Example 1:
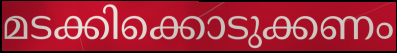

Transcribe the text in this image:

മടക്കിക്കൊടുക്കണം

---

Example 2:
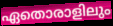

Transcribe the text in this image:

ഏതൊരാളിലും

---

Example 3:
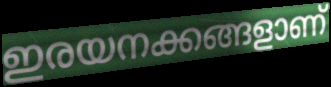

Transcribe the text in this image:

ഇരയനക്കങ്ങളാണ്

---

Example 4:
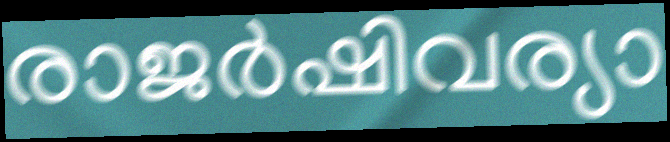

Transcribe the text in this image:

രാജർഷിവര്യാ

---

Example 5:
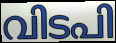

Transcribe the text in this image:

വിടപി